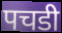
पचडी